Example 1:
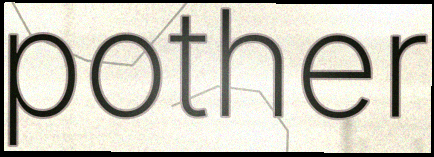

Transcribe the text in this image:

pother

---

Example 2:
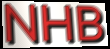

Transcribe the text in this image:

NHB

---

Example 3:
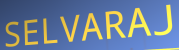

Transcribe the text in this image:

SELVARAJ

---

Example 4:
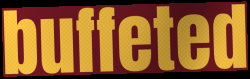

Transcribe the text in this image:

buffeted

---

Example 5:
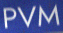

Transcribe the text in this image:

PVM